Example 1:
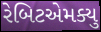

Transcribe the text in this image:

રેબિટએમક્યુ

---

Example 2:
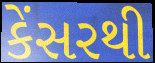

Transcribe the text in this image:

કેંસરથી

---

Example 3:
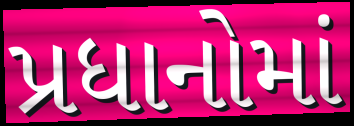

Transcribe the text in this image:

પ્રધાનોમાં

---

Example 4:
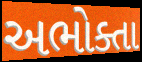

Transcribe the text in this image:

અભોક્તા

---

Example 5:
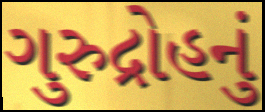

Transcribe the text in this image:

ગુરુદ્રોહનું